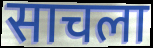
साचला